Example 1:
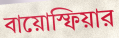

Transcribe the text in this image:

বায়োস্ফিয়ার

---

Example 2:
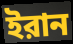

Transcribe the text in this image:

ইরান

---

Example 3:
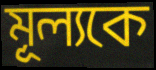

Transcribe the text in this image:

মূল্যকে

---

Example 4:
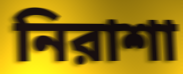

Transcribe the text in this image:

নিরাশা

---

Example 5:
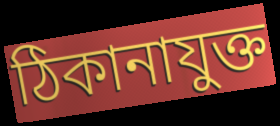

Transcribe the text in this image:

ঠিকানাযুক্ত